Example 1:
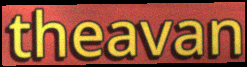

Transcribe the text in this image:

theavan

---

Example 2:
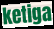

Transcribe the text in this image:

ketiga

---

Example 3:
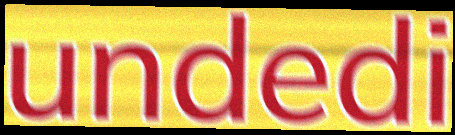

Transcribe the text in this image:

undedi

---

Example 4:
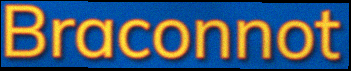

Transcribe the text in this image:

Braconnot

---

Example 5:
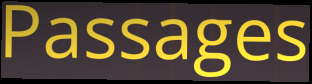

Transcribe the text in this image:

Passages